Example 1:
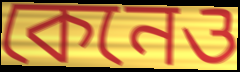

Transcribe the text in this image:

কেনেও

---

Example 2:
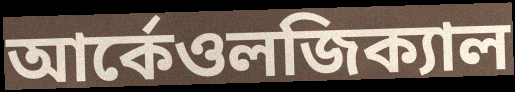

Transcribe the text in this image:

আর্কেওলজিক্যাল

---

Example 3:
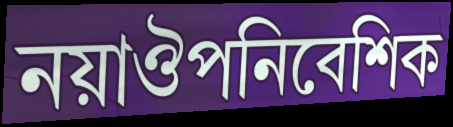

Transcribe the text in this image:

নয়াঔপনিবেশিক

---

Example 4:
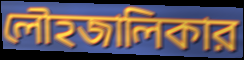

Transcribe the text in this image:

লৌহজালিকার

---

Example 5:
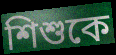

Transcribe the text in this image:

শিশুকে